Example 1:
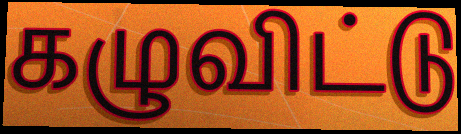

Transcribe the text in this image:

கழுவிட்டு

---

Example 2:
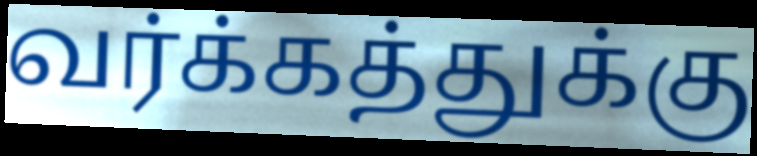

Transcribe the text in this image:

வர்க்கத்துக்கு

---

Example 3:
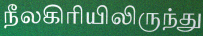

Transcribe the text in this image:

நீலகிரியிலிருந்து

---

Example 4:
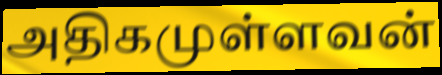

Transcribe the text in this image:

அதிகமுள்ளவன்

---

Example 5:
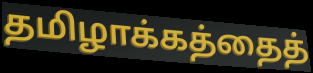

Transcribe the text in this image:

தமிழாக்கத்தைத்